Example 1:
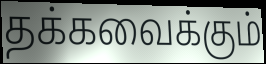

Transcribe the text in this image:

தக்கவைக்கும்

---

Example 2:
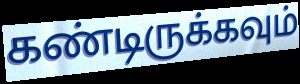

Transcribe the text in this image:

கண்டிருக்கவும்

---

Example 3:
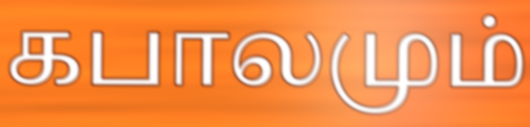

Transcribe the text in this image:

கபாலமும்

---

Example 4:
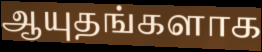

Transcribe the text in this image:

ஆயுதங்களாக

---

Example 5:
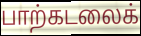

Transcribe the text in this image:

பாற்கடலைக்